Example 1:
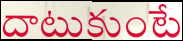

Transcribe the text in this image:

దాటుకుంటే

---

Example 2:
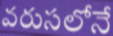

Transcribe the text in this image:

వరుసలోనే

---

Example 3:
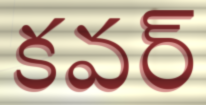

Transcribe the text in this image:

కవర్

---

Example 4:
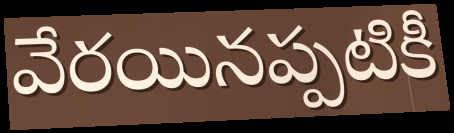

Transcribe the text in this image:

వేరయినప్పటికీ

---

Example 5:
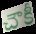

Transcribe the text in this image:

చౌకీ